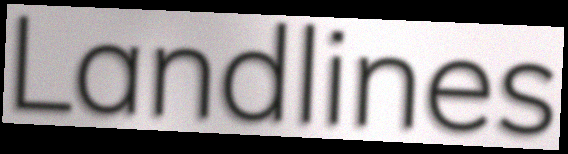
Landlines